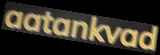
aatankvad